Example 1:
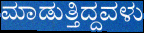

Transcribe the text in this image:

ಮಾಡುತ್ತಿದ್ದವಳು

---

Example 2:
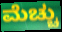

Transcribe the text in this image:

ಮೆಚ್ಚು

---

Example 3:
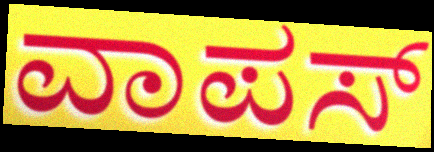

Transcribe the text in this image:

ವಾಪಸ್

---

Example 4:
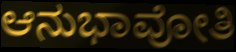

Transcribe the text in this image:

ಆನುಭಾವೋತಿ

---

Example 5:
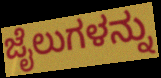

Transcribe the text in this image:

ಜೈಲುಗಳನ್ನು